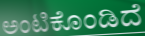
ಅಂಟಿಕೊಂಡಿದೆ